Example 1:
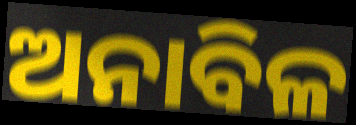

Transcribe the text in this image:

ଅନାବିଳ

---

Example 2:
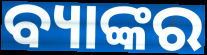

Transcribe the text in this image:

ବ୍ୟାଙ୍କର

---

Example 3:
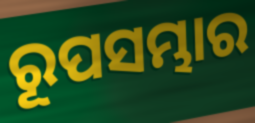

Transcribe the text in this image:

ରୂପସମ୍ଭାର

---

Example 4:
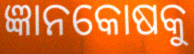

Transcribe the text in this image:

ଜ୍ଞାନକୋଷକୁ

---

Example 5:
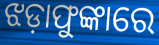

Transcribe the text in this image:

ଝଡ଼ାଫୁଙ୍କାରେ